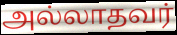
அல்லாதவர்